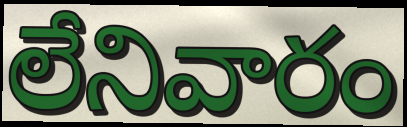
లేనివారం